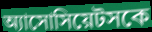
অ্যাসোসিয়েটসকে